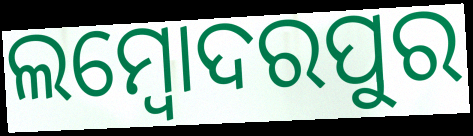
ଲମ୍ବୋଦରପୁର